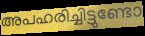
അപഹരിച്ചിട്ടുണ്ടോ